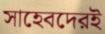
সাহেবদেরই